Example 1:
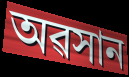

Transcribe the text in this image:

অৱসান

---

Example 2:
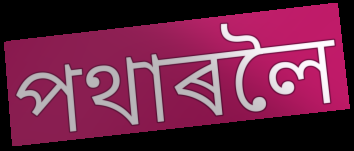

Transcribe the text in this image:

পথাৰলৈ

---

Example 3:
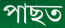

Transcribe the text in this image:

পাছত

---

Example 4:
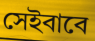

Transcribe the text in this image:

সেইবাবে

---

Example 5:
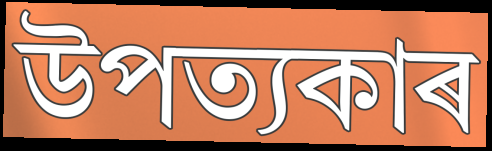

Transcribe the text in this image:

উপত্যকাৰ